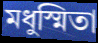
মধুস্মিতা